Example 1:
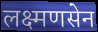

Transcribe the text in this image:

लक्ष्मणसेन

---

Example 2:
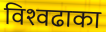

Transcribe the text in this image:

विश्वढाका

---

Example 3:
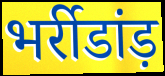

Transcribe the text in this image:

भर्रीडांड़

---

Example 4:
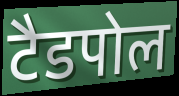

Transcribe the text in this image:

टैडपोल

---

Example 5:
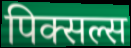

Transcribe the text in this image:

पिक्सल्स